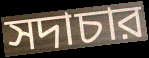
সদাচার